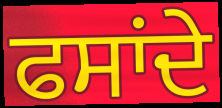
ਫਸਾਂਦੇ